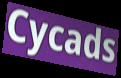
Cycads